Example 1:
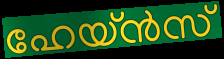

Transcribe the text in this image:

ഹേയ്ൻസ്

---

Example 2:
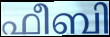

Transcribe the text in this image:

ഫീബി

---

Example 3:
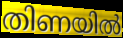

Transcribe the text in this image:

തിണയിൽ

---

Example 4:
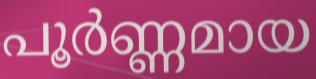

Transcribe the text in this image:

പൂർണ്ണമായ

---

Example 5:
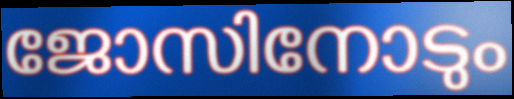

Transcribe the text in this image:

ജോസിനോടും